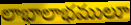
లాభాలాభములూ